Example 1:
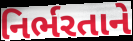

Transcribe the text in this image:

નિર્ભરતાને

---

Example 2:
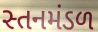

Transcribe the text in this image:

સ્તનમંડળ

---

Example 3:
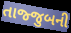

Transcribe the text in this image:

તાજ્જુબની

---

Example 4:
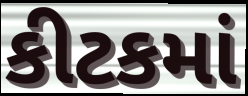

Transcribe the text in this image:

કીટકમાં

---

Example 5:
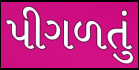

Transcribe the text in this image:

પીગળતું